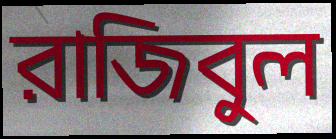
রাজিবুল